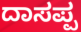
ದಾಸಪ್ಪ